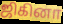
ஜிகினா